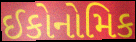
ઈકોનોમિક